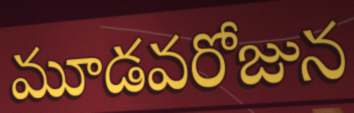
మూడవరోజున